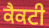
ਕੈਕਟੀ